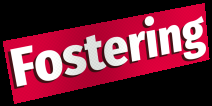
Fostering